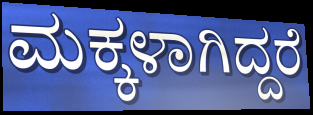
ಮಕ್ಕಳಾಗಿದ್ದರೆ